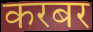
करबर